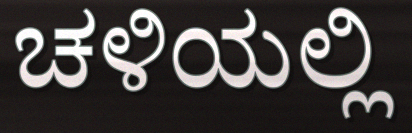
ಚಳಿಯಲ್ಲಿ